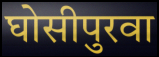
घोसीपुरवा